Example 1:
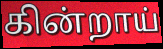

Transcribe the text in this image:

கின்றாய்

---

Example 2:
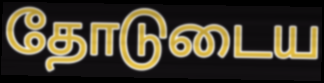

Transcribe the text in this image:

தோடுடைய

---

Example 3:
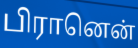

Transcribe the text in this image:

பிரானென்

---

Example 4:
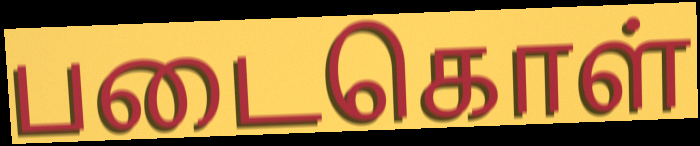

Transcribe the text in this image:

படைகொள்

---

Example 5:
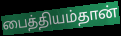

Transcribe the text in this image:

பைத்தியம்தான்